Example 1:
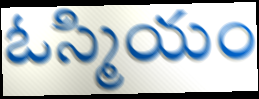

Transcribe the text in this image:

ఓస్మియం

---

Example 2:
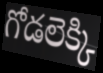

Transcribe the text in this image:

గోడలెక్కి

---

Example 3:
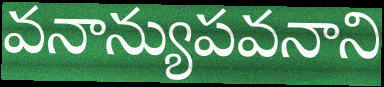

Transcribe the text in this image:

వనాన్యుపవనాని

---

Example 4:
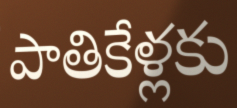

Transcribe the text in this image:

పాతికేళ్లకు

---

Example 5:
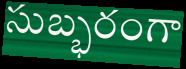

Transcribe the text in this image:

సుబ్భరంగా